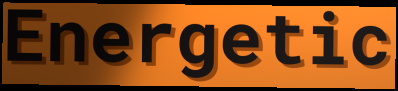
Energetic